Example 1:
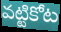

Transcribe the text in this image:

వట్టికోట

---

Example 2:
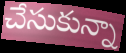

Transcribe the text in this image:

చేసుకున్నా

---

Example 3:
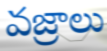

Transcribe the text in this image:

వజ్రాలు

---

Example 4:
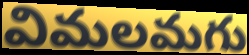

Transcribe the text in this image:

విమలమగు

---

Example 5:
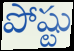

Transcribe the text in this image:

పోష్టు